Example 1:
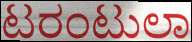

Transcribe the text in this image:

ಟರಂಟುಲಾ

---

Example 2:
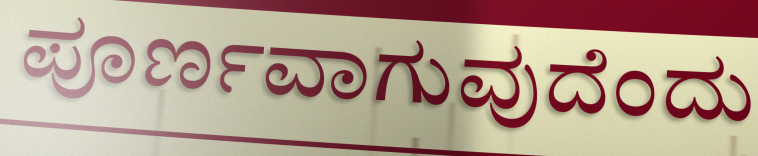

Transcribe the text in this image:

ಪೂರ್ಣವಾಗುವುದೆಂದು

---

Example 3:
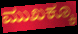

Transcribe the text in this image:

ಮುಖಕ್ಕೂ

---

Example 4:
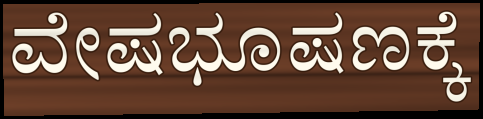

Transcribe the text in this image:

ವೇಷಭೂಷಣಕ್ಕೆ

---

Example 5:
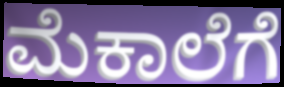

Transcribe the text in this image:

ಮೆಕಾಲೆಗೆ